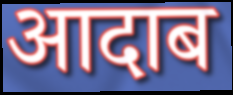
आदाब